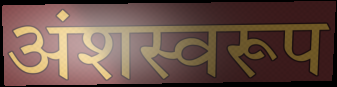
अंशस्वरूप